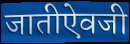
जातीऐवजी